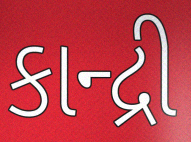
કાન્દ્રી